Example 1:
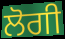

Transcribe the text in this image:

ਲੋਗੀ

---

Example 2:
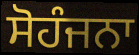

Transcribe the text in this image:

ਸੋਹੰਜਨਾ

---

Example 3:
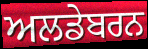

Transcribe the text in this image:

ਅਲਡੇਬਰਨ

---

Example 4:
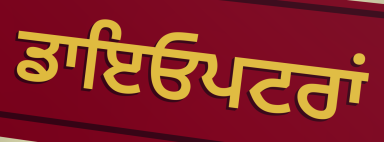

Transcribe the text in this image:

ਡਾਇਓਪਟਰਾਂ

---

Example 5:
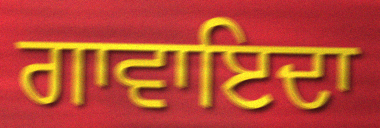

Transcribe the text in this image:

ਗਾਵਾਇਦਾ